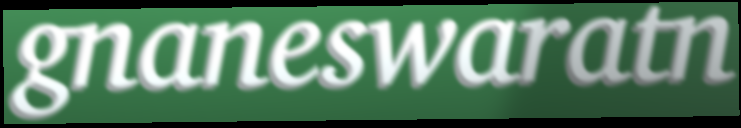
gnaneswaratn